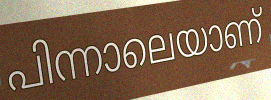
പിന്നാലെയാണ്